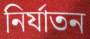
নিৰ্যাতন